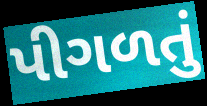
પીગળતું